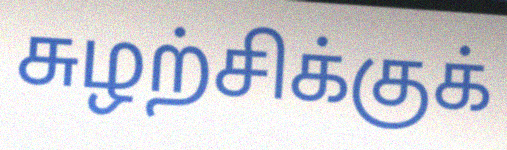
சுழற்சிக்குக்